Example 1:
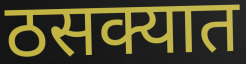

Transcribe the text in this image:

ठसक्यात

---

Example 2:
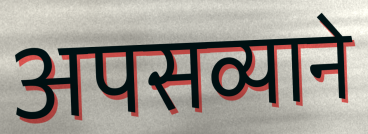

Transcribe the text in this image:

अपसव्याने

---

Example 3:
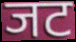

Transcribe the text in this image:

जट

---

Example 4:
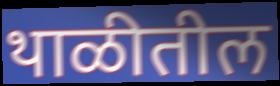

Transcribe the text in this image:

थाळीतील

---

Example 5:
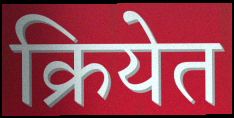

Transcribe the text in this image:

क्रियेत